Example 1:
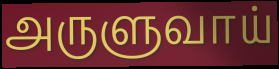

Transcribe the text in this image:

அருளுவாய்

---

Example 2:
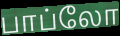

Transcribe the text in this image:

பாப்லோ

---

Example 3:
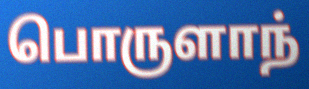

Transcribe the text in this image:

பொருளாந்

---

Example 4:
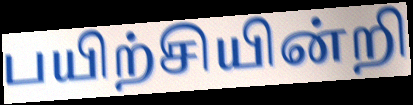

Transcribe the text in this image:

பயிற்சியின்றி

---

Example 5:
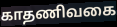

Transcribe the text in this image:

காதணிவகை